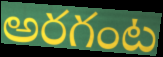
అరగంట